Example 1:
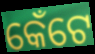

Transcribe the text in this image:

କେଁଟେ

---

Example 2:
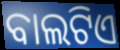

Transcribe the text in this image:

ବାଲଟିଏ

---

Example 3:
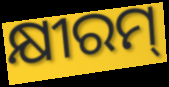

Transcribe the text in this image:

କ୍ଷୀରମ୍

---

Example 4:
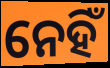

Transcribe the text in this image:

ନେହିଁ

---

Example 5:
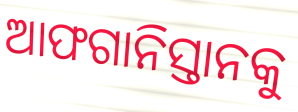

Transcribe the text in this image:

ଆଫଗାନିସ୍ତାନକୁ